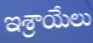
ఇశ్రాయేలు